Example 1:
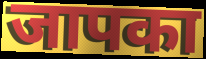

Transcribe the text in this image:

जापका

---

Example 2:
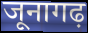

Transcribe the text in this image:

जूनागढ़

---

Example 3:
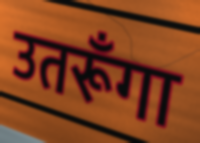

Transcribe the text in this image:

उतरूँगा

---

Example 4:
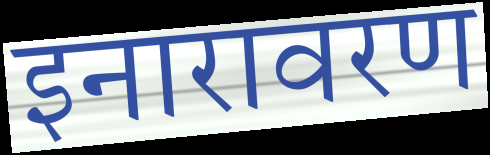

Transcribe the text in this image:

इनारावरण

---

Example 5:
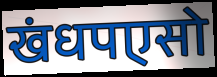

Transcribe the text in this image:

खंधपएसो